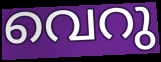
വെറു